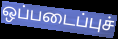
ஒப்படைப்புச்